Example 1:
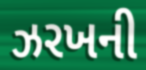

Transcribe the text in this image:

ઝરખની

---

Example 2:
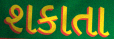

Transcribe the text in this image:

શકાતા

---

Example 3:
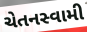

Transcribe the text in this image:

ચેતનસ્વામી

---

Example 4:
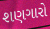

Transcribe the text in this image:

શણગારો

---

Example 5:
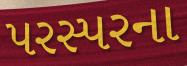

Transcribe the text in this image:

પરસ્પરના